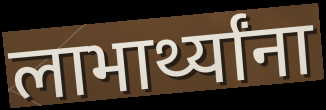
लाभार्थ्यांना